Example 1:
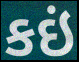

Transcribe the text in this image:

કઇં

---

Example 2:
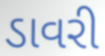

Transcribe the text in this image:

ડાવરી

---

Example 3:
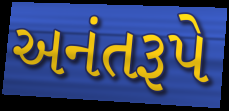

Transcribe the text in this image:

અનંતરૂપે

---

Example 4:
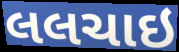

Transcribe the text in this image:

લલચાઇ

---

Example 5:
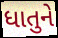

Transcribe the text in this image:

ધાતુને